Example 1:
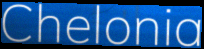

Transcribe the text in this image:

Chelonia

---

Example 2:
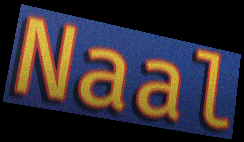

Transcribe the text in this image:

Naal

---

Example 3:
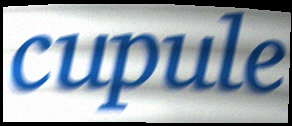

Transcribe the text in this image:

cupule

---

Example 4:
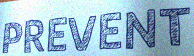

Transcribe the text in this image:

PREVENT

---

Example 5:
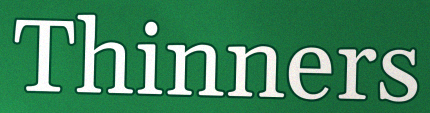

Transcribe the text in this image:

Thinners